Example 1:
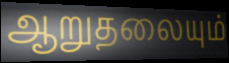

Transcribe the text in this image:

ஆறுதலையும்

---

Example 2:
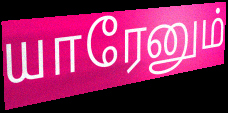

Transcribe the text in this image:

யாரேனும்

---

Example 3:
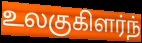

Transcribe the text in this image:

உலகுகிளர்ந்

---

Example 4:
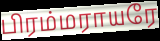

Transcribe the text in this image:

பிரம்மராயரே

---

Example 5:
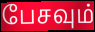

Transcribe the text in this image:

பேசவும்